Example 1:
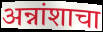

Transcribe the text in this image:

अन्नांशाचा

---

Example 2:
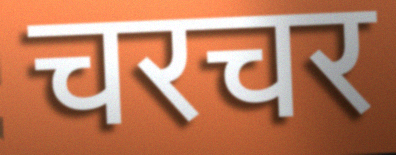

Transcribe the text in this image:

चरचर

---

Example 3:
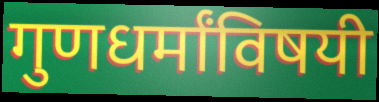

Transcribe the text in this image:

गुणधर्मांविषयी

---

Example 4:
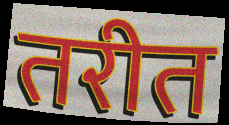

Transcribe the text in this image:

तरीत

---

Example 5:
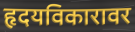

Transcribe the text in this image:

हृदयविकारावर